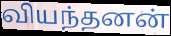
வியந்தனன்